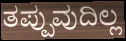
ತಪ್ಪುವುದಿಲ್ಲ